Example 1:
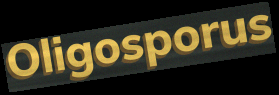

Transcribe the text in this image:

Oligosporus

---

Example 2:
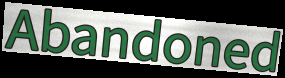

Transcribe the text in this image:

Abandoned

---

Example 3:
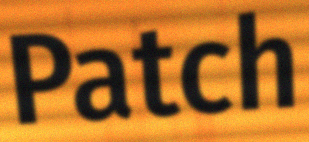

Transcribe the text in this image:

Patch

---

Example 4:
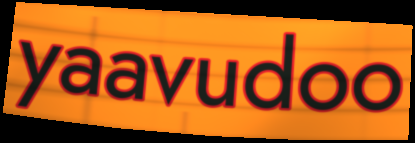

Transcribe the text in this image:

yaavudoo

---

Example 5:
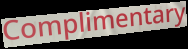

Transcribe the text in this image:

Complimentary